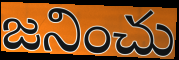
జనించు